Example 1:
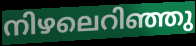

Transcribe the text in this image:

നിഴലെറിഞ്ഞു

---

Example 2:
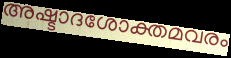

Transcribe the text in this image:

അഷ്ടാദശോക്തമവരം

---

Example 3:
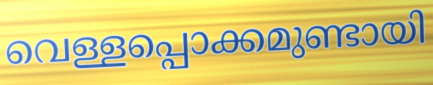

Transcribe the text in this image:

വെള്ളപ്പൊക്കമുണ്ടായി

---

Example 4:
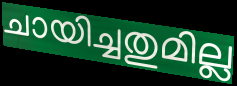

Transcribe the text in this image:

ചായിച്ചതുമില്ല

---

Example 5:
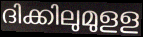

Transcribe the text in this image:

ദിക്കിലുമുളള